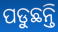
ପଡୁଛନ୍ତି